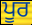
ਪੂਰ